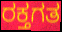
ರಕ್ತಗತ